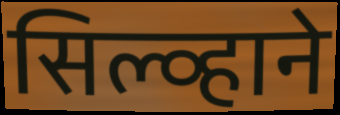
सिल्व्हाने